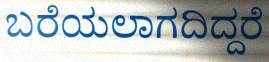
ಬರೆಯಲಾಗದಿದ್ದರೆ